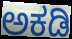
ಅಕಡಿ